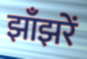
झाँझरें